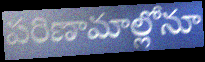
పరిణామాల్లోనూ